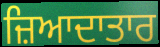
ਜ਼ਿਆਦਾਤਾਰ